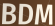
BDM